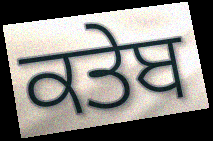
ਕਤੇਬ